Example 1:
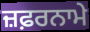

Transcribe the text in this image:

ਜ਼ਫ਼ਰਨਾਮੇ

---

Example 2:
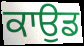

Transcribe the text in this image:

ਕਾਉਡ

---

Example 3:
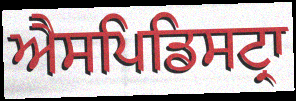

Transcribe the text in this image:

ਐਸਪਿਡਿਸਟ੍ਰਾ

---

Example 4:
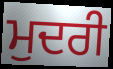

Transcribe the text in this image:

ਮੁਦਰੀ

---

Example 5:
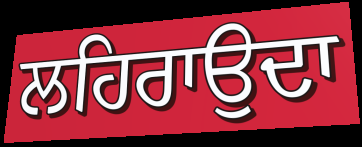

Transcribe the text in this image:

ਲਹਿਰਾਉਦਾ